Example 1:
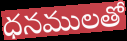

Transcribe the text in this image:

ధనములతో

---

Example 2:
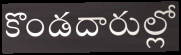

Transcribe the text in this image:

కొండదారుల్లో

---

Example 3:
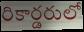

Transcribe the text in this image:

రికార్డరులో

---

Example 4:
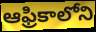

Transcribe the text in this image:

ఆఫ్రికాలోని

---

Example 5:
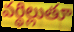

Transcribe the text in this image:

వర్థిల్లుతూ